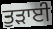
ਤੁੜਾਈ